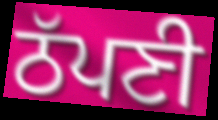
ਠੱਪਣੀ